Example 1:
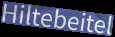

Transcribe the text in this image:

Hiltebeitel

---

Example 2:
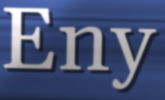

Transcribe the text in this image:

Eny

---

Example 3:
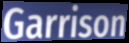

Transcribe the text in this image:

Garrison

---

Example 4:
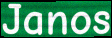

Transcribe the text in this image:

Janos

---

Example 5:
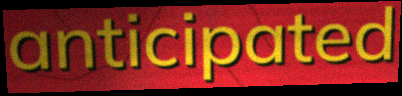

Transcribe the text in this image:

anticipated